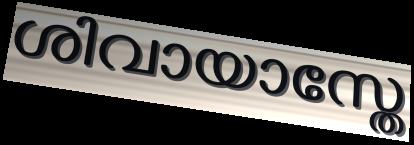
ശിവായാസ്തേ